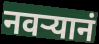
नवऱ्यानं